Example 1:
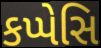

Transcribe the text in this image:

કપ્પેસિ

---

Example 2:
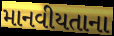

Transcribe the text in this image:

માનવીયતાના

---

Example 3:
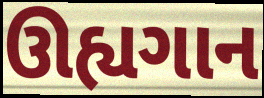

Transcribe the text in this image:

ઊહ્યગાન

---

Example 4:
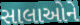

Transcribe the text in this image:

સાલાઓને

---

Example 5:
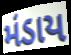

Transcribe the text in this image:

મંડાય